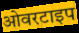
ओवरटाइप